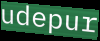
udepur